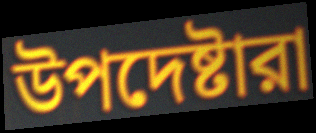
উপদেষ্টারা